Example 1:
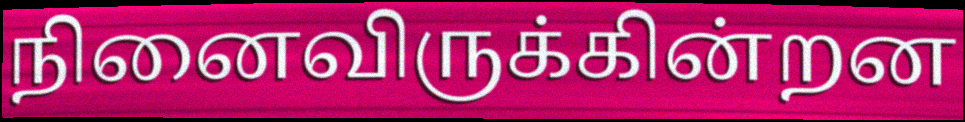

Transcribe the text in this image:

நினைவிருக்கின்றன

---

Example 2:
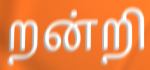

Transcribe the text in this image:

றன்றி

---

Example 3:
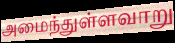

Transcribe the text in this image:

அமைந்துள்ளவாறு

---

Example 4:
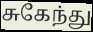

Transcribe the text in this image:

சுகேந்து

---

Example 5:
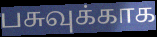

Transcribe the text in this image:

பசுவுக்காக